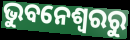
ଭୁବନେଶ୍ୱରରୁ